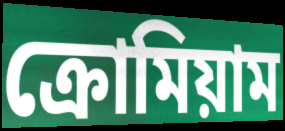
ক্রোমিয়াম